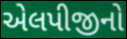
એલપીજીનો